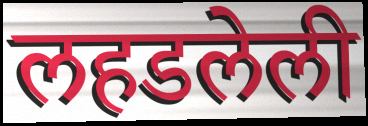
लहडलेली